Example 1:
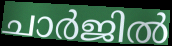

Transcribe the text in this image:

ചാർജിൽ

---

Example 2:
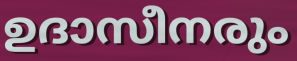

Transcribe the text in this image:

ഉദാസീനരും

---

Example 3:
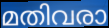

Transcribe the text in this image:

മതിവരാ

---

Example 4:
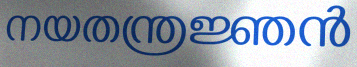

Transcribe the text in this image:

നയതന്ത്രജ്ഞൻ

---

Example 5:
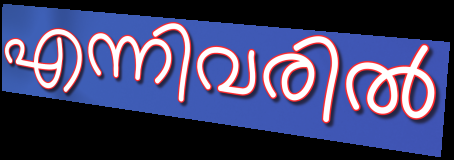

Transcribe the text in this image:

എന്നിവരിൽ